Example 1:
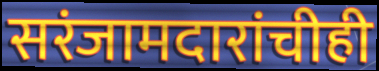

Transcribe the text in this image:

सरंजामदारांचीही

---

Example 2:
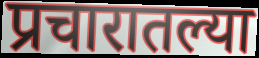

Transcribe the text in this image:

प्रचारातल्या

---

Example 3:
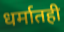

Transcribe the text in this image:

धर्मातही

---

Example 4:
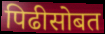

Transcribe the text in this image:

पिढीसोबत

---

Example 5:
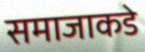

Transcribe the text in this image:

समाजाकडे